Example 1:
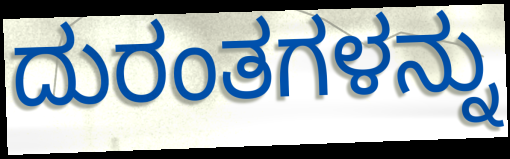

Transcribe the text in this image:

ದುರಂತಗಳನ್ನು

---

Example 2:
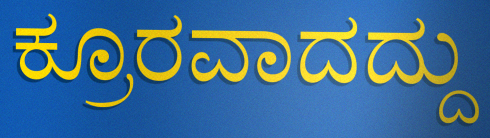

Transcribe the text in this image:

ಕ್ರೂರವಾದದ್ದು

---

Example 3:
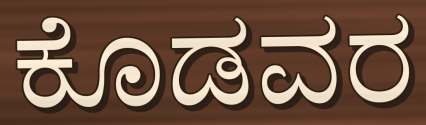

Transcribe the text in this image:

ಕೊಡವರ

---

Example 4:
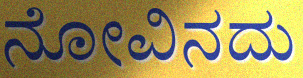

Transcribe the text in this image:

ನೋವಿನದು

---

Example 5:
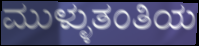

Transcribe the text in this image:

ಮುಳ್ಳುತಂತಿಯ